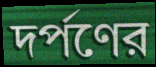
দর্পণের